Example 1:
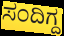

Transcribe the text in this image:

ಸಂದಿಗ್ದ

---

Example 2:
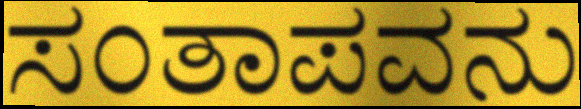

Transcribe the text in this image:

ಸಂತಾಪವನು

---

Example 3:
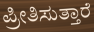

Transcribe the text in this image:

ಪ್ರೀತಿಸುತ್ತಾರೆ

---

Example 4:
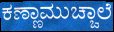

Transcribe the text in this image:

ಕಣ್ಣಾಮುಚ್ಚಾಲೆ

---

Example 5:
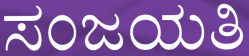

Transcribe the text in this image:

ಸಂಜಯತಿ